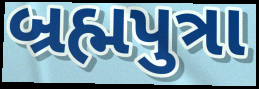
બ્રહ્મપુત્રા